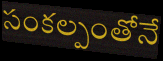
సంకల్పంతోనే